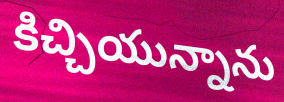
కిచ్చియున్నాను